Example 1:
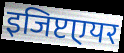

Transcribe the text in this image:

इजिप्टएयर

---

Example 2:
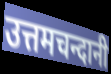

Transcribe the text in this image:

उत्तमचन्दानी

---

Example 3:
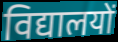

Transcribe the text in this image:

विद्यालयों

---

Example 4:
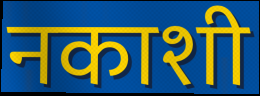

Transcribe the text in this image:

नकाशी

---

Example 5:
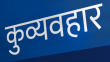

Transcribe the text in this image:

कुव्यवहार